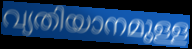
വ്യതിയാനമുള്ള